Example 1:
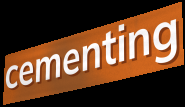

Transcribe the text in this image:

cementing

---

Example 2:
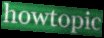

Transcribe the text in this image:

howtopic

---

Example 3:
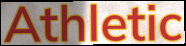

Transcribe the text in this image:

Athletic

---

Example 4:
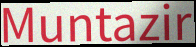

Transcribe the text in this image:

Muntazir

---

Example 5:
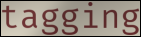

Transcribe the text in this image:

tagging